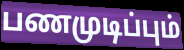
பணமுடிப்பும்